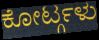
ಕೋರ್ಟ್ಗಳು